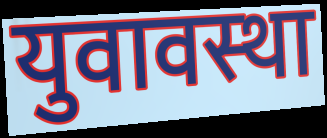
युवावस्था